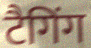
टैगिंग